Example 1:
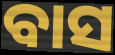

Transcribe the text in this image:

ବାସ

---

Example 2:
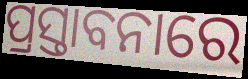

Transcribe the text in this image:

ପ୍ରସ୍ତାବନାରେ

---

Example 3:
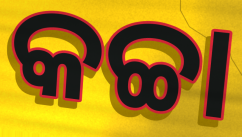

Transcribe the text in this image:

କଚ୍ଚା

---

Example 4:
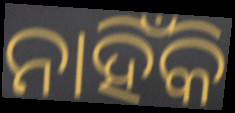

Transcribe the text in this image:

ନାହିଁକି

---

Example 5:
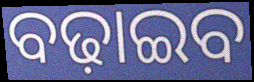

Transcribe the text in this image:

ବଢ଼ାଇବ